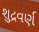
શુદ્રવર્ણ